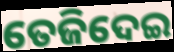
ତେଜିଦେଇ